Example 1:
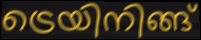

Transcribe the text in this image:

ട്രെയിനിങ്ങ്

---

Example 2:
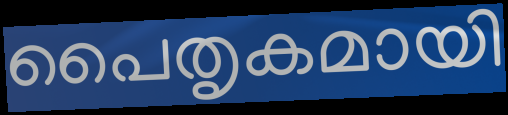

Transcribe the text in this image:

പൈതൃകമായി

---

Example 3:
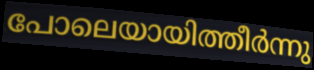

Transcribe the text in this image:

പോലെയായിത്തീർന്നു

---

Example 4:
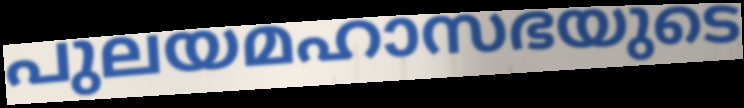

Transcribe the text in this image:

പുലയമഹാസഭയുടെ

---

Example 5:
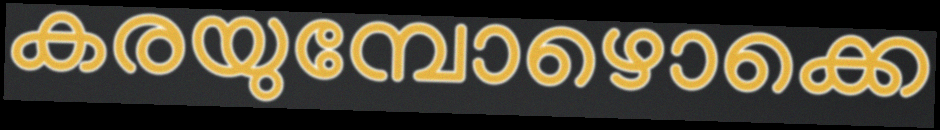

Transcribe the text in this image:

കരയുമ്പോഴൊക്കെ